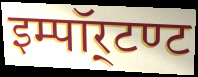
इम्पॉर्टण्ट